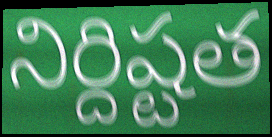
నిర్దిష్టత